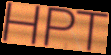
HPT